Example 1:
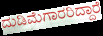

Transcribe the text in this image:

ದುಡಿಮೆಗಾರರಿದ್ದಾರೆ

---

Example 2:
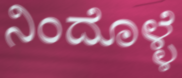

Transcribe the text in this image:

ನಿಂದೊಳ್ಳೆ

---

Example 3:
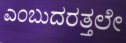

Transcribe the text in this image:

ಎಂಬುದರತ್ತಲೇ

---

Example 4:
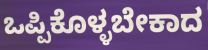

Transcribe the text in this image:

ಒಪ್ಪಿಕೊಳ್ಳಬೇಕಾದ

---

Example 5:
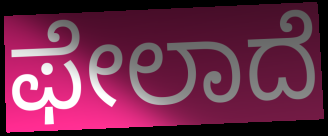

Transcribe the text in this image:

ಫೇಲಾದೆ